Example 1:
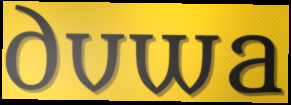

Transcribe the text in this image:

duwa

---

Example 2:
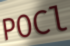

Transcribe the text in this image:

POCl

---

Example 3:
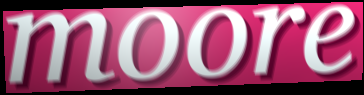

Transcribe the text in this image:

moore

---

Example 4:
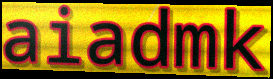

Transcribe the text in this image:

aiadmk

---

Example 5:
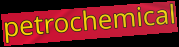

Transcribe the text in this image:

petrochemical